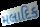
મલાદિક